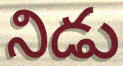
నిడు